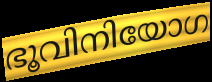
ഭൂവിനിയോഗ